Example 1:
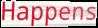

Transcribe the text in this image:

Happens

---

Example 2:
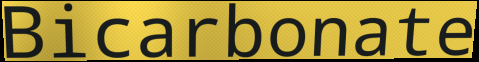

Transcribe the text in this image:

Bicarbonate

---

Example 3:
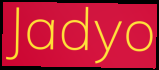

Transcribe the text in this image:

Jadyo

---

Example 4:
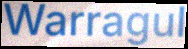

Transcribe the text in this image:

Warragul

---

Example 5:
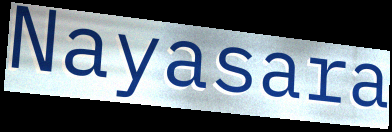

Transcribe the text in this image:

Nayasara